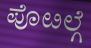
ಪೊೞಲ್ಗೆ